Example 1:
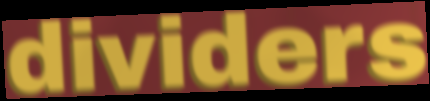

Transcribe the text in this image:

dividers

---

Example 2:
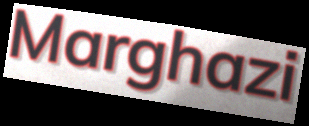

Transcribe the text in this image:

Marghazi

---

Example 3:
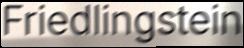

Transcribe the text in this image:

Friedlingstein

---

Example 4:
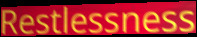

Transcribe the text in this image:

Restlessness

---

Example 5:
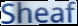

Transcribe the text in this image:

Sheaf